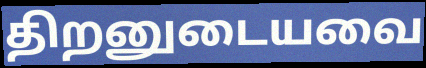
திறனுடையவை